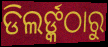
ଡିଲର୍ଙ୍କଠାରୁ